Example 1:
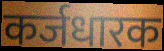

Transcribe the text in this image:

कर्जधारक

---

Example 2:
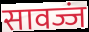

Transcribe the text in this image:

सावज्जं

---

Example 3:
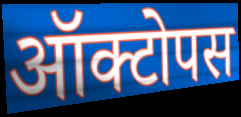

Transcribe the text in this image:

ऑक्टोपस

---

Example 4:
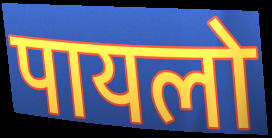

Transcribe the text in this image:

पायलो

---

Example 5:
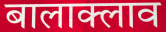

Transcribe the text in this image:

बालाक्लाव